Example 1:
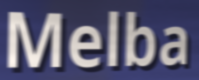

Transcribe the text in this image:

Melba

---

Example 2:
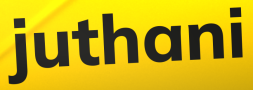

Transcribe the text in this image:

juthani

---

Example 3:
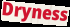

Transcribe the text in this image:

Dryness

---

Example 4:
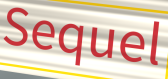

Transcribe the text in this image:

Sequel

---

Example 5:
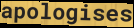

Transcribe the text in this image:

apologises